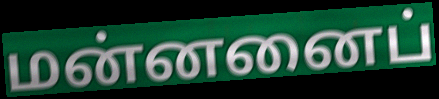
மன்னனைப்